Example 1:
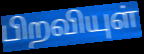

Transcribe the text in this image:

பிறவியுள்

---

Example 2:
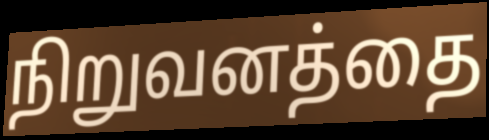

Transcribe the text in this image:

நிறுவனத்தை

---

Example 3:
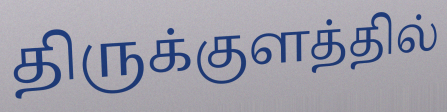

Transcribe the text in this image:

திருக்குளத்தில்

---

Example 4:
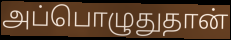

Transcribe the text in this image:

அப்பொழுதுதான்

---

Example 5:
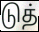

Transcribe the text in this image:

டுத்